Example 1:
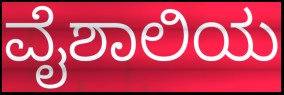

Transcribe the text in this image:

ವೈಶಾಲಿಯ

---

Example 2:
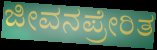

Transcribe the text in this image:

ಜೀವನಪ್ರೇರಿತ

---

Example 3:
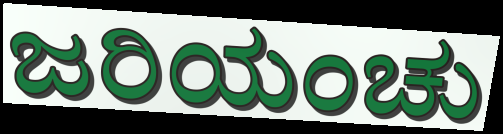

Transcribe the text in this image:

ಜರಿಯಂಚು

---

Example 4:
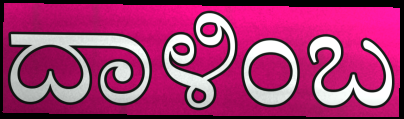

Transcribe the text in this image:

ದಾಳಿಂಬ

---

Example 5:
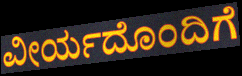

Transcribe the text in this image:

ವೀರ್ಯದೊಂದಿಗೆ